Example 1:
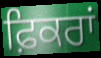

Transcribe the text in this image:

ਫ਼ਿਕਰਾਂ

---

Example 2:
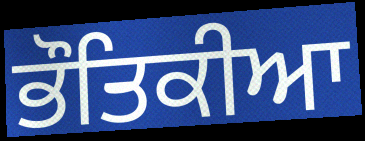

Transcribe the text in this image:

ਭੌਤਿਕੀਆ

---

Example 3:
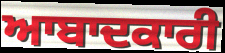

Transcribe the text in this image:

ਆਬਾਦਕਾਰੀ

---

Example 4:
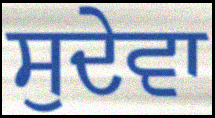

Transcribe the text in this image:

ਸੁਦੇਵਾ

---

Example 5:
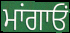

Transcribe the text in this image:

ਮਾਂਗਾਓਂ